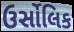
ઉર્સોલિક